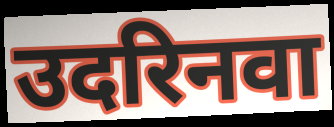
उदरिनवा